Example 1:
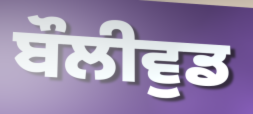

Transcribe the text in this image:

ਬੌਲੀਵੁਡ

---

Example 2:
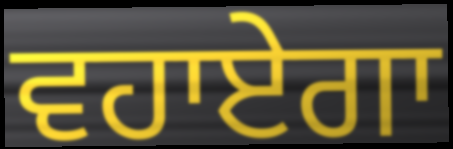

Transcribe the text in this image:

ਵਹਾਏਗਾ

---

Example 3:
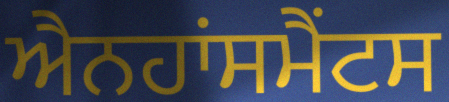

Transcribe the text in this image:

ਐਨਹਾਂਸਮੈਂਟਸ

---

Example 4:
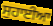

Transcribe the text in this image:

ਸੁਹਾਈਆ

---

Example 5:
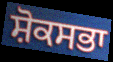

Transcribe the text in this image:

ਸ਼ੋਕਸਭਾ